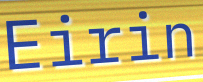
Eirin